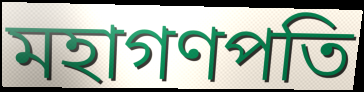
মহাগণপতি